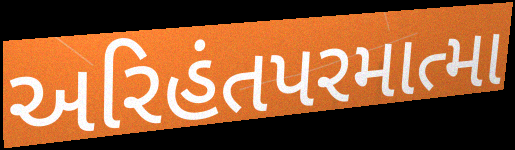
અરિહંતપરમાત્મા